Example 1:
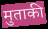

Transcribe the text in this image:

मुताकी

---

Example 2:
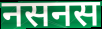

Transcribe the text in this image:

नसनस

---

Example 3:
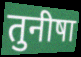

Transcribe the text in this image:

तुनीषा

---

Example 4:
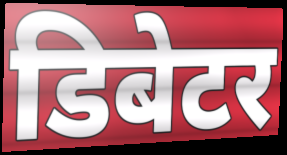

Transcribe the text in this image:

डिबेटर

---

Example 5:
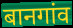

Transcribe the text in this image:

बानगांव